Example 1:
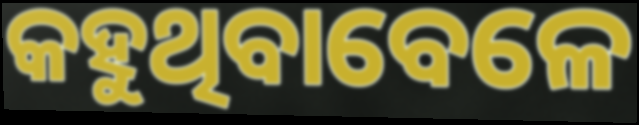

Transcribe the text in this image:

କହୁଥିବାବେଳେ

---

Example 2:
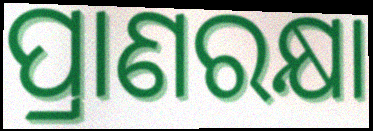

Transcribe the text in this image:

ପ୍ରାଣରକ୍ଷା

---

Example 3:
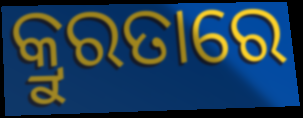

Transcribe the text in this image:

କ୍ରୁରତାରେ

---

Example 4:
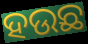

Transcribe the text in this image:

ହଉଛ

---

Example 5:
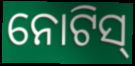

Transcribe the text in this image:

ନୋଟିସ୍